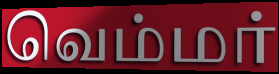
வெம்மர்